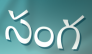
సంగ